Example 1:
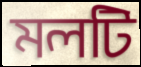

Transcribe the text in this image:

মলটি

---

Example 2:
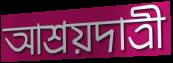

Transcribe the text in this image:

আশ্রয়দাত্রী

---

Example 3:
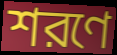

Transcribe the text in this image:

শরণে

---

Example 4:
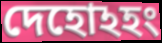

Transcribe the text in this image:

দেহোঽহং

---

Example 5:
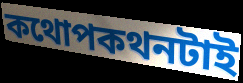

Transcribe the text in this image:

কথোপকথনটাই